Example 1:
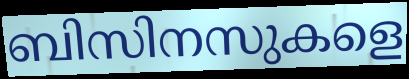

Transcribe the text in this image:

ബിസിനസുകളെ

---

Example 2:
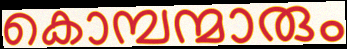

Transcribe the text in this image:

കൊമ്പന്മാരും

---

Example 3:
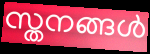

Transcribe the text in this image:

സ്തനങ്ങൾ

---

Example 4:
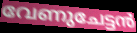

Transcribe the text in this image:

വേണുചേട്ടൻ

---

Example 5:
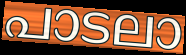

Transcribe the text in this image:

പാടലാ